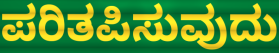
ಪರಿತಪಿಸುವುದು